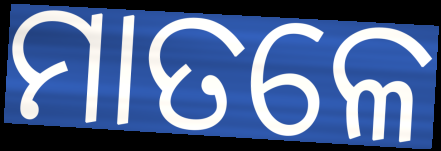
ମାତଳେ